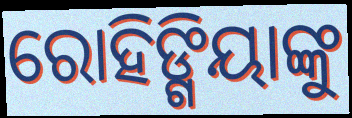
ରୋହିଙ୍ଗିୟାଙ୍କୁ